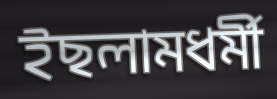
ইছলামধৰ্মী